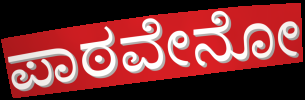
ಪಾಠವೇನೋ